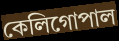
কেলিগোপাল